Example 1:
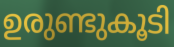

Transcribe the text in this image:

ഉരുണ്ടുകൂടി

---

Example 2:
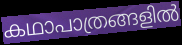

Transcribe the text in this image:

കഥാപാത്രങ്ങളിൽ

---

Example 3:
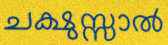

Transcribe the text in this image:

ചക്ഷുസ്സാൽ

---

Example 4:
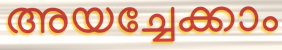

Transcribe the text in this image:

അയച്ചേക്കാം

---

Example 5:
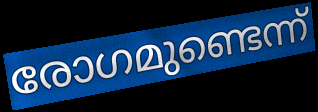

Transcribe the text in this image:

രോഗമുണ്ടെന്ന്